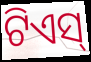
ଟିଏସ୍